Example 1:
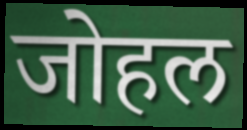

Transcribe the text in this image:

जोहल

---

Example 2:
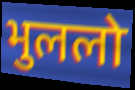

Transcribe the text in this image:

भुललो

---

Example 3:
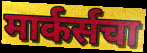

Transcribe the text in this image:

मार्कर्सचा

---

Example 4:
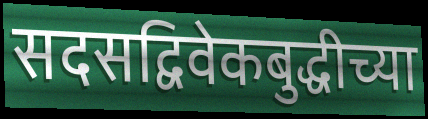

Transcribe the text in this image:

सदसद्विवेकबुद्धीच्या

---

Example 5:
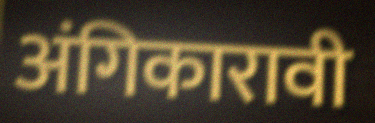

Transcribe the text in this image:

अंगिकारावी